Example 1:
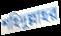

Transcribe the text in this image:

শহিদুল্লাহর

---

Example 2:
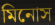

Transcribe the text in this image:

মিনোস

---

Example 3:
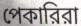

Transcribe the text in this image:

পেকারিরা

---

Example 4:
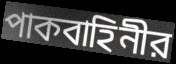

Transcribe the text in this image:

পাকবাহিনীর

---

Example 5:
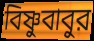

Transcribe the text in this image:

বিষ্ণুবাবুর